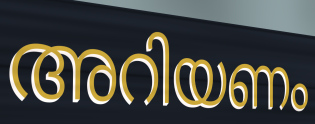
അറിയണം